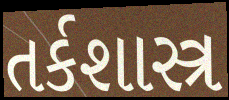
તર્કશાસ્ત્ર